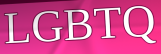
LGBTQ